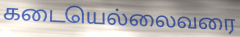
கடையெல்லைவரை